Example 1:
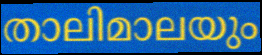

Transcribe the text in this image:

താലിമാലയും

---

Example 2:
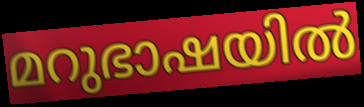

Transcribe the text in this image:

മറുഭാഷയിൽ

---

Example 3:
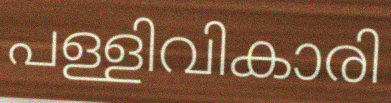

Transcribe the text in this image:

പള്ളിവികാരി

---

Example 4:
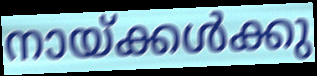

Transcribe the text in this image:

നായ്ക്കൾക്കു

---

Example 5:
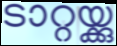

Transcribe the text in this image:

ടാറ്റയ്ക്കു